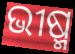
ଭୀଷ୍ମ